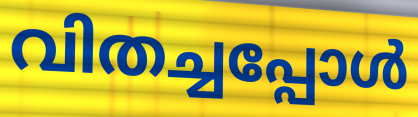
വിതച്ചപ്പോൾ